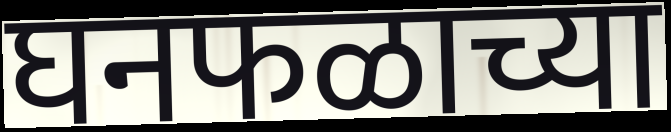
घनफळाच्या